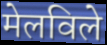
मेलविले